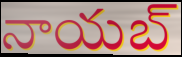
నాయబ్